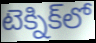
టెక్నిక్‌లో